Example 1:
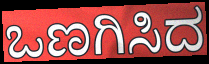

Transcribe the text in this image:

ಒಣಗಿಸಿದ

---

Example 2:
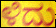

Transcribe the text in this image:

ಳಿದು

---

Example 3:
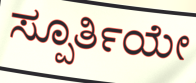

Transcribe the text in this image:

ಸ್ಪೂರ್ತಿಯೇ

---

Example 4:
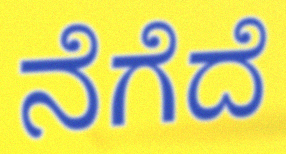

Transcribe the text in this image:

ನೆಗೆದೆ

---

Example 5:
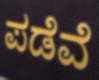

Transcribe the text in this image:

ಪಡೆವೆ